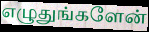
எழுதுங்களேன்